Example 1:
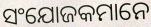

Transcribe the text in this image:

ସଂଯୋଜକମାନେ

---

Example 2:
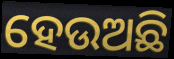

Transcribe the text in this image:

ହେଉଅଛି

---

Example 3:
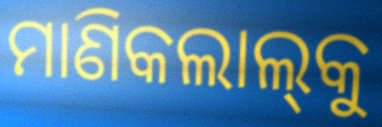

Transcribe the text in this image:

ମାଣିକଲାଲ୍‍କୁ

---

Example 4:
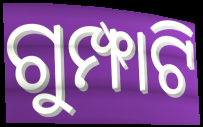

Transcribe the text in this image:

ଗୁମ୍ଫାଟି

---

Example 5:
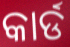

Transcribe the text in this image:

କାର୍ଡ